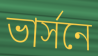
ভার্সনে